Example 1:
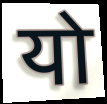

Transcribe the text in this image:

यो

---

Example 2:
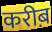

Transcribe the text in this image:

करीब़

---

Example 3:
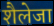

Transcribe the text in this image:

शैलेजा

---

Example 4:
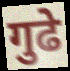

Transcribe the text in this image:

गुढे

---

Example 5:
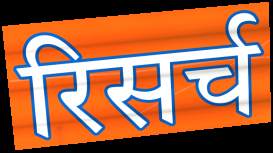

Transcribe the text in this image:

रिसर्च